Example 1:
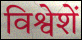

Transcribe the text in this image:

विश्वेशें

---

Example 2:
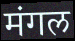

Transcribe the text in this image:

मंगल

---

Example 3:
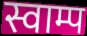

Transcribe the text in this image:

स्वाम्प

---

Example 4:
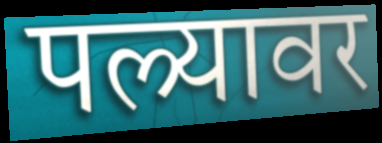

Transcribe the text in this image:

पल्यावर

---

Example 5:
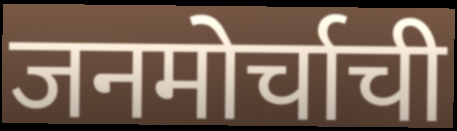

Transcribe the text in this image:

जनमोर्चाची